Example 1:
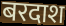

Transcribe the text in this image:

बरदाश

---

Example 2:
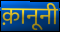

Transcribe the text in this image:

क़ानूनी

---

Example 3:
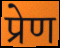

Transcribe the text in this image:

प्रेण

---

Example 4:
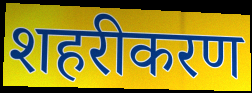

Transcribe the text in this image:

शहरीकरण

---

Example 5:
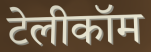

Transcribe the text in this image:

टेलीकॉम